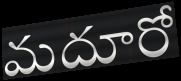
మదూరో